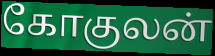
கோகுலன்